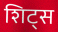
शिट्स